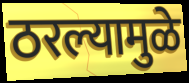
ठरल्यामुळे